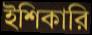
ইশিকারি